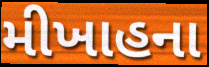
મીખાહના